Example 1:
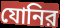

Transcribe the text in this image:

যোনির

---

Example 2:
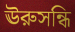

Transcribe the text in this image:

ঊরুসন্ধি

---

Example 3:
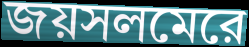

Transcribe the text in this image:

জয়সলমেরে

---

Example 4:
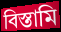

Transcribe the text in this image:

বিস্তামি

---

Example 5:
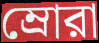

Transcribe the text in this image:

ম্রোরা